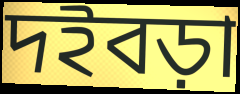
দইবড়া